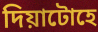
দিয়াটোহে